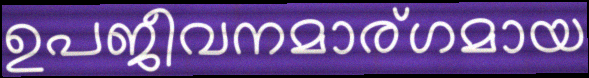
ഉപജീവനമാര്ഗമായ